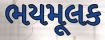
ભયમૂલક